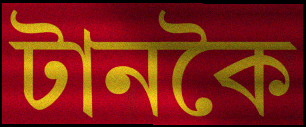
টানকৈ